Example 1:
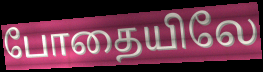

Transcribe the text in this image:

போதையிலே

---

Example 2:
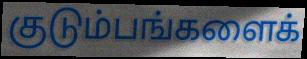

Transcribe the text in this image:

குடும்பங்களைக்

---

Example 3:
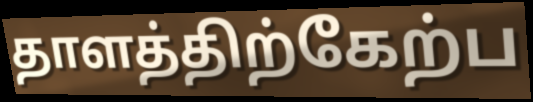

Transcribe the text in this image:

தாளத்திற்கேற்ப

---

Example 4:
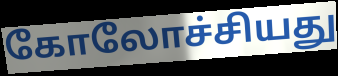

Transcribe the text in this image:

கோலோச்சியது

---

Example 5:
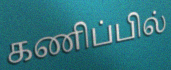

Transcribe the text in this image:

கணிப்பில்